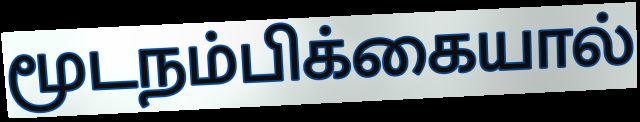
மூடநம்பிக்கையால்